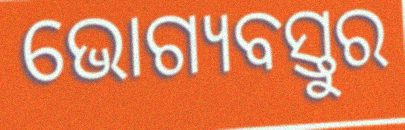
ଭୋଗ୍ୟବସ୍ତୁର